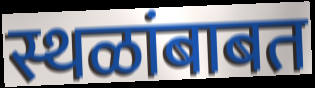
स्थळांबाबत